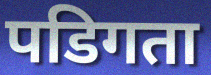
पडिगता